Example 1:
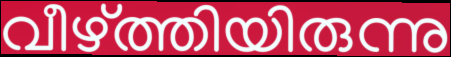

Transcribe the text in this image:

വീഴ്ത്തിയിരുന്നു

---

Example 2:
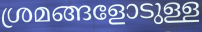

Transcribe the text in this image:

ശ്രമങ്ങളോടുള്ള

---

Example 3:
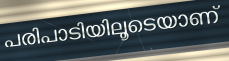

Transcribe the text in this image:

പരിപാടിയിലൂടെയാണ്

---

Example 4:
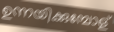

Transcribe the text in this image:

ഉന്നയിക്കുമ്പോള്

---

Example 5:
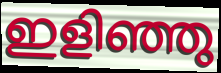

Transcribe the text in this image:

ഇളിഞ്ഞു